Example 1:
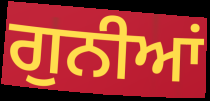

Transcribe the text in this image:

ਗੁਨੀਆਂ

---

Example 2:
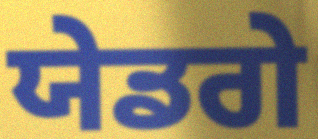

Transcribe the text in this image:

ਯੇਡਗੇ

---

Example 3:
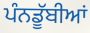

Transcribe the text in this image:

ਪੰਨਡੂੱਬੀਆਂ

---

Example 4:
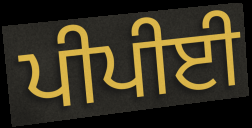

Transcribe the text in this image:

ਪੀਪੀਈ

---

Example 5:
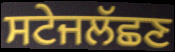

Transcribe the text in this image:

ਸਟੇਜਲੱਛਣ